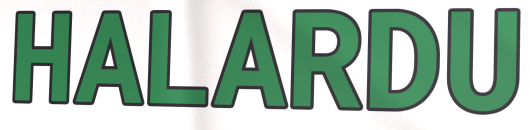
HALARDU